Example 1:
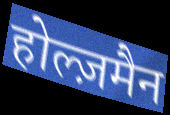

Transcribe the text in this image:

होल्ज़मैन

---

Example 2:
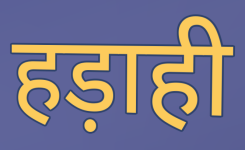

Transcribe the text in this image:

हड़ाही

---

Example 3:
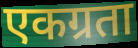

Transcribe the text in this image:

एकग्रता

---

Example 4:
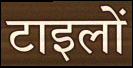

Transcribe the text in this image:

टाइलों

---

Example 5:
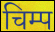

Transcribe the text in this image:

चिम्प